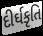
દીર્ઘકૃતિ